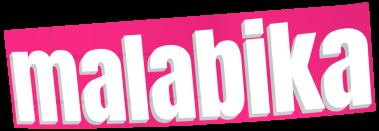
malabika